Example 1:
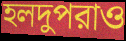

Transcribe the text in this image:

হলদুপরাও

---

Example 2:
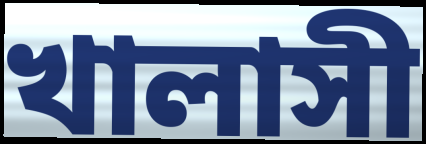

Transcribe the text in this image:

খালাসী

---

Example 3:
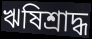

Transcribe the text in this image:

ঋষিশ্রাদ্ধ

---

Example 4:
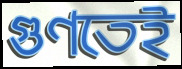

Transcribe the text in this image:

গুণতেই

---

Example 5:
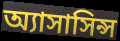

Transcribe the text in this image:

অ্যাসাসিন্স